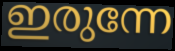
ഇരുന്നേ